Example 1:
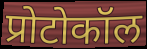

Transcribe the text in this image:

प्रोटोकॉल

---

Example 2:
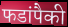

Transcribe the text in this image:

फडांपैकी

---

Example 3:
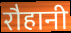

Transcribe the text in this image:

रौहानी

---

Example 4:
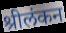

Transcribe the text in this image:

श्रीलंकन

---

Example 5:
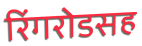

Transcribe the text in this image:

रिंगरोडसह